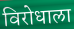
विरोधाला